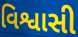
વિશ્વાસી